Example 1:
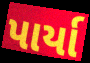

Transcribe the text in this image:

પાર્યા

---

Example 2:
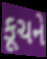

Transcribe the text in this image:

કૂચને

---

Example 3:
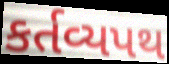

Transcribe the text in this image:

કર્તવ્યપથ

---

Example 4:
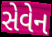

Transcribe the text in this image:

સેવેન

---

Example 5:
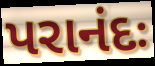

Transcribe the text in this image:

પરાનંદઃ